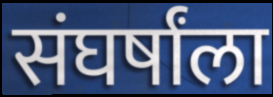
संघर्षांला